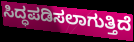
ಸಿದ್ಧಪಡಿಸಲಾಗುತ್ತಿದೆ